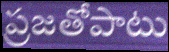
ప్రజతోపాటు